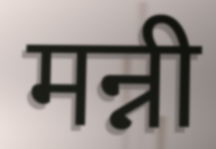
मन्नी